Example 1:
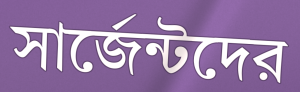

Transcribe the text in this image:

সার্জেন্টদের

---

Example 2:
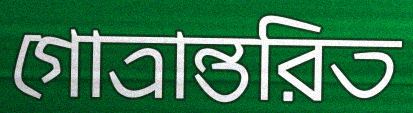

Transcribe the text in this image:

গোত্রান্তরিত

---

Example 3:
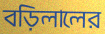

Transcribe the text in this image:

বড়িলালের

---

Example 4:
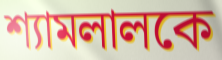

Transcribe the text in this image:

শ্যামলালকে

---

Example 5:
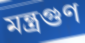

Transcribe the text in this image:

মন্ত্রগুণ